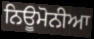
ਨਿਊਮੋਨੀਆ